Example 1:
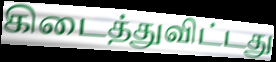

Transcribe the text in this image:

கிடைத்துவிட்டது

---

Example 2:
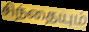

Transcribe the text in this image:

சிந்தையும்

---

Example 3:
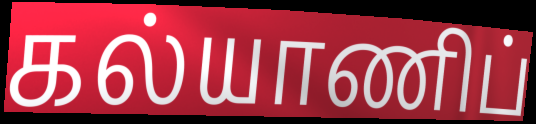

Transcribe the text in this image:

கல்யாணிப்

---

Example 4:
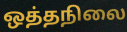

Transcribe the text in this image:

ஒத்தநிலை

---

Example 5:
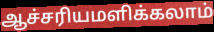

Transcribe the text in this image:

ஆச்சரியமளிக்கலாம்